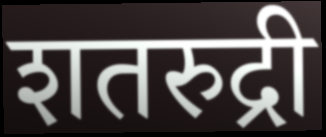
शतरुद्री